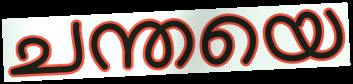
ചന്തയെ